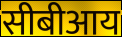
सीबीआय